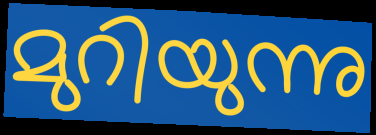
മുറിയുന്നു